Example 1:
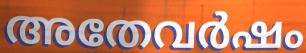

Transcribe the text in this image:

അതേവർഷം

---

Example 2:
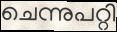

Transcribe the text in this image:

ചെന്നുപറ്റി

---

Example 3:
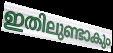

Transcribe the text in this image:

ഇതിലുണ്ടാകും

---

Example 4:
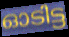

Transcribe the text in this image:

ഓടിട്ട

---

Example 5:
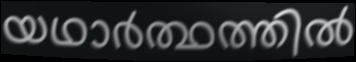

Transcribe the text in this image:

യഥാർത്ഥത്തിൽ